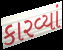
કારવ્યાં